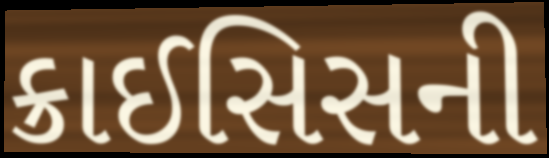
ક્રાઈસિસની